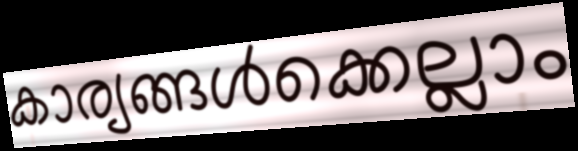
കാര്യങ്ങൾക്കെല്ലാം